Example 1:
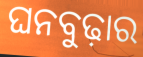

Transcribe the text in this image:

ଘନବୁଢ଼ାର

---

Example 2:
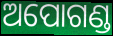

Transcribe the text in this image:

ଅପୋଗଣ୍ଡ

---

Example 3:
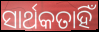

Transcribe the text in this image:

ସାର୍ଥକତାହିଁ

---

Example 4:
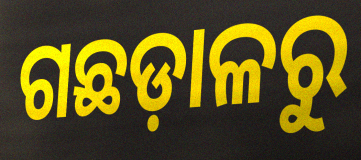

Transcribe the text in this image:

ଗଛଡ଼ାଳରୁ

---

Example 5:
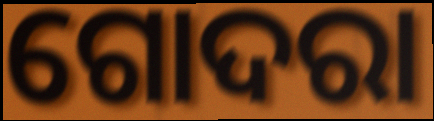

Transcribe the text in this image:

ଗୋଦରା